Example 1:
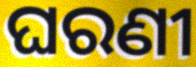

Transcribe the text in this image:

ଘରଣୀ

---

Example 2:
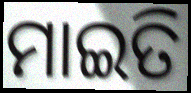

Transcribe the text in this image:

ମାଇତି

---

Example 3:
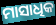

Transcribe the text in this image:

ମାସାଧିକ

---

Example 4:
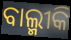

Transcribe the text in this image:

ବାଲ୍ମୀକି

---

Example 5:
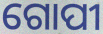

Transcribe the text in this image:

ଗୋପୀ